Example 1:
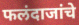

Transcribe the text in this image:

फलंदाजांचे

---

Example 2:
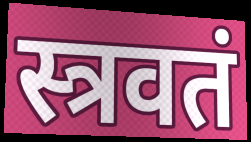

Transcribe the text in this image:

स्त्रवतं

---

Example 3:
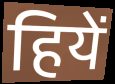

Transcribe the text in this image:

हियें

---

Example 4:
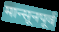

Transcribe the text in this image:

मान्सूनपूर्व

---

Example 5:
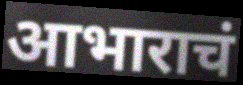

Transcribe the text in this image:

आभाराचं